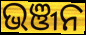
ଭଞ୍ଜନ